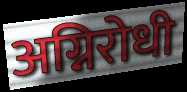
अग्निरोधी